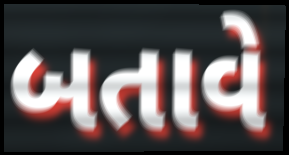
બતાવે